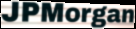
JPMorgan